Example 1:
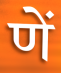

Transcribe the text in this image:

णें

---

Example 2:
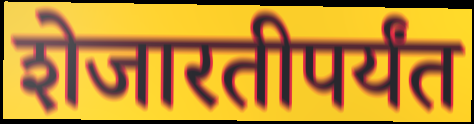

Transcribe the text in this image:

शेजारतीपर्यंत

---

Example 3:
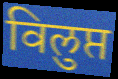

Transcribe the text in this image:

विलुप्त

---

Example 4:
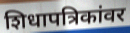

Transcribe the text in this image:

शिधापत्रिकांवर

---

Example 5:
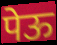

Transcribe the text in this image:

पेऊ